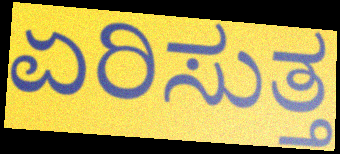
ಏರಿಸುತ್ತ